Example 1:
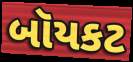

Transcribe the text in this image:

બૉયકટ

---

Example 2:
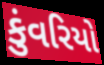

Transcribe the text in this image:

કુંવરિયો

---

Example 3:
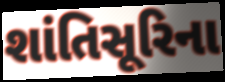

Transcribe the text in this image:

શાંતિસૂરિના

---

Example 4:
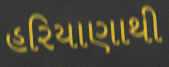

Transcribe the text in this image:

હરિયાણાથી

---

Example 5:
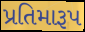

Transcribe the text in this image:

પ્રતિમારૂપ